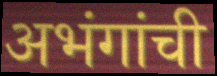
अभंगांची